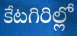
కేటగిరిల్లో